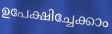
ഉപേക്ഷിച്ചേക്കാം